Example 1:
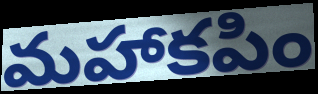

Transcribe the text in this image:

మహాకపిం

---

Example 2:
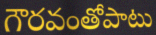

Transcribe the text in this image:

గౌరవంతోపాటు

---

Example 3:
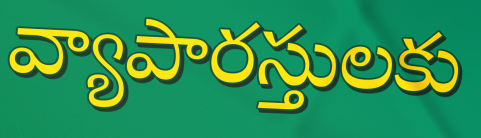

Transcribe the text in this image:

వ్యాపారస్తులకు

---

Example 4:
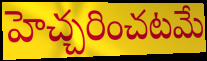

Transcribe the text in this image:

హెచ్చరించటమే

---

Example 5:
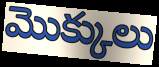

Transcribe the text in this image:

మొక్కులు